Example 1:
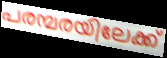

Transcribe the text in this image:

പരമ്പരയിലേക്ക്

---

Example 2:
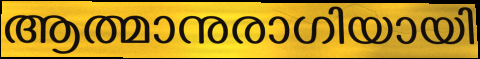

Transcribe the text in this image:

ആത്മാനുരാഗിയായി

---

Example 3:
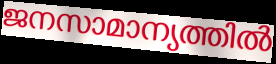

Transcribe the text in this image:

ജനസാമാന്യത്തിൽ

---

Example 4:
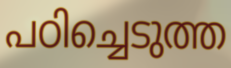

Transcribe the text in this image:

പഠിച്ചെടുത്ത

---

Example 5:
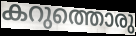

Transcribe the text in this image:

കറുത്തൊരു